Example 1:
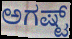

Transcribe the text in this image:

ಅಗಷ್ಟ್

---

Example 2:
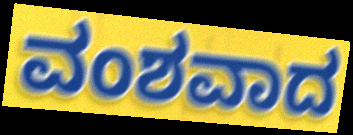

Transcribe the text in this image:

ವಂಶವಾದ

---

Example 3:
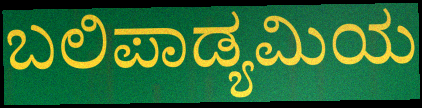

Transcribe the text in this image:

ಬಲಿಪಾಡ್ಯಮಿಯ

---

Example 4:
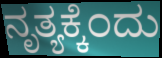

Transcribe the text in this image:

ನೃತ್ಯಕ್ಕೆಂದು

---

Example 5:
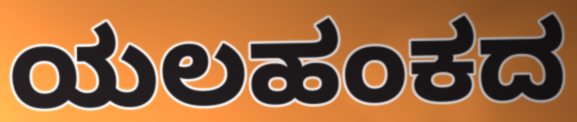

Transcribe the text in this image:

ಯಲಹಂಕದ